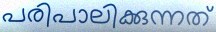
പരിപാലിക്കുന്നത്